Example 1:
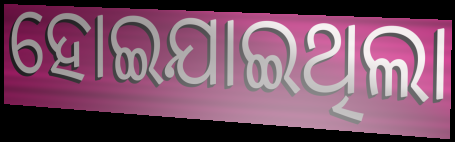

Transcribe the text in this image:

ହୋଇଯାଇଥିଲା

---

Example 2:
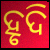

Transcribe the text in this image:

ହୃଦି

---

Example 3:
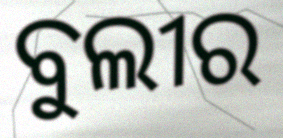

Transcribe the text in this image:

ବୁଲୀର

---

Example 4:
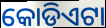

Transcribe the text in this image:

କୋଡିଏଟା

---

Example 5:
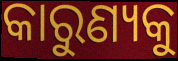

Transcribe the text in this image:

କାରୁଣ୍ୟକୁ